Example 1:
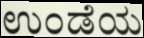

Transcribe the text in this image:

ಉಂಡೆಯ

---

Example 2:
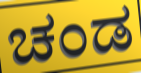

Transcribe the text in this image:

ಚಂಡ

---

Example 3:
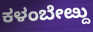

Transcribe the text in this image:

ಕಳಂಬೇೞ್ದು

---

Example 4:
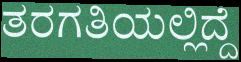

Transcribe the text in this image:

ತರಗತಿಯಲ್ಲಿದ್ದೆ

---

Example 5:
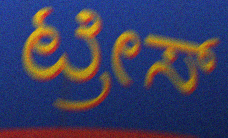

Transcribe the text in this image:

ಟ್ರೇಸ್